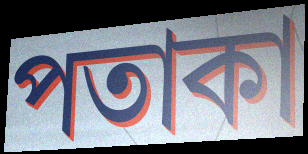
পতাকা